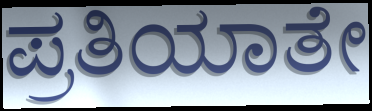
ಪ್ರತಿಯಾತೇ